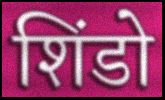
शिंडो